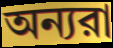
অন্যরা